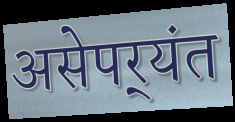
असेपर्यंत